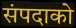
संपदाको